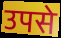
उपसे